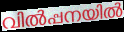
വിൽപ്പനയിൽ